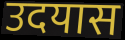
उदयास